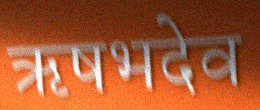
ऋषभदेव